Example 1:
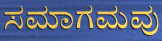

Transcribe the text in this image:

ಸಮಾಗಮವು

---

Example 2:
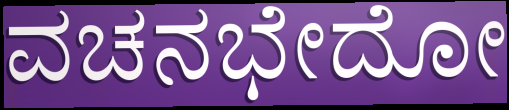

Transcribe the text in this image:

ವಚನಭೇದೋ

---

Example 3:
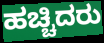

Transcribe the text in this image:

ಹಚ್ಚಿದರು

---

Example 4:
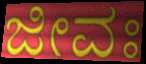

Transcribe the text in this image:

ಜೀವಃ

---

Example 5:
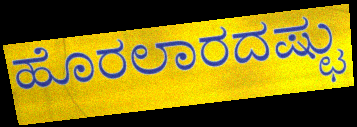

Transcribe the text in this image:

ಹೊರಲಾರದಷ್ಟು